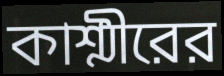
কাশ্মীরের